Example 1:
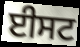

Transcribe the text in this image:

ਈਸਟ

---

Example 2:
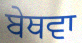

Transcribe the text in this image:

ਬੇਥਵਾ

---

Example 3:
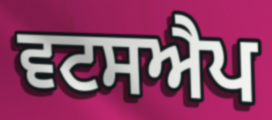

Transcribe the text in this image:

ਵਟਸਐਪ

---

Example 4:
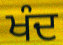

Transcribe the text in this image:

ਖੰਦ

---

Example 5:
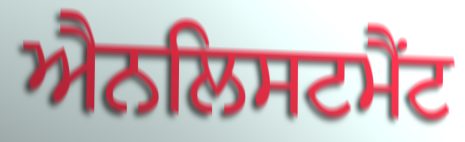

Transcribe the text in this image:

ਐਨਲਿਸਟਮੈਂਟ